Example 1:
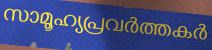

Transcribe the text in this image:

സാമൂഹ്യപ്രവർത്തകർ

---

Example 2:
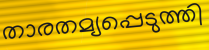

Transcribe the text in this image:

താരതമ്യപ്പെടുത്തി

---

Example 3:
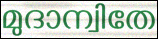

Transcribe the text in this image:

മുദാന്വിതേ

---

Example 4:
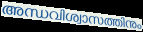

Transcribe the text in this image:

അന്ധവിശ്വാസത്തിനും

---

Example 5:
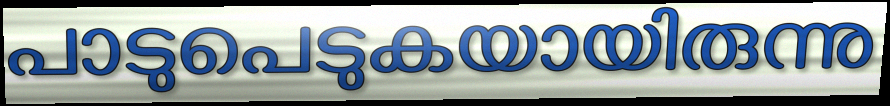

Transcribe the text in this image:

പാടുപെടുകയായിരുന്നു